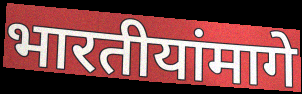
भारतीयांमागे